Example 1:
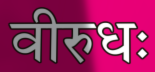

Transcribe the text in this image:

वीरुधः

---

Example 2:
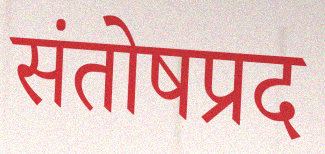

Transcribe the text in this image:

संतोषप्रद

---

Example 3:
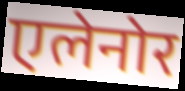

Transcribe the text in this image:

एलेनोर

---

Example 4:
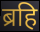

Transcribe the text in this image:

ब्रहि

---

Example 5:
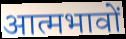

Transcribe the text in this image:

आत्मभावों